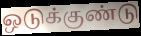
ஒடுக்குண்டு